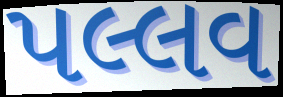
પલ્લવ